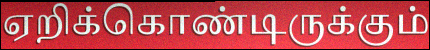
ஏறிக்கொண்டிருக்கும்